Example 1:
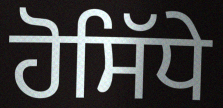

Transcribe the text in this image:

ਹੋਸਿੱਧੇ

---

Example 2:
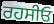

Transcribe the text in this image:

ਰਹਸੀਓ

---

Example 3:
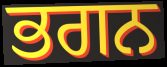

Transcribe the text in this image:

ਭਗਨ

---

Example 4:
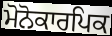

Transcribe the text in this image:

ਮੋਨੋਕਾਰਪਿਕ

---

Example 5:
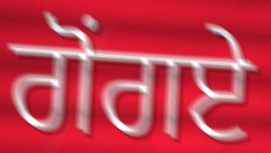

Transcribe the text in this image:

ਗੋਂਗਏ